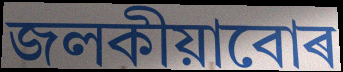
জলকীয়াবোৰ